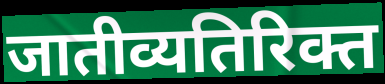
जातीव्यतिरिक्त